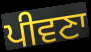
ਪੀਵਣਾ